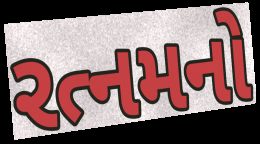
રત્નમનો